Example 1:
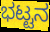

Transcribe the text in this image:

ಭಟ್ಟನ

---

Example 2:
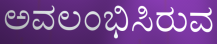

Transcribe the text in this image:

ಅವಲಂಭಿಸಿರುವ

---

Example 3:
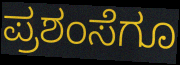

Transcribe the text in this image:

ಪ್ರಶಂಸೆಗೂ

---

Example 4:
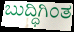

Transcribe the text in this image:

ಬುದ್ಧಿಗಿಂತ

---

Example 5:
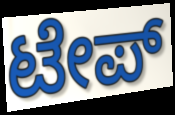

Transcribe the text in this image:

ಟೇಪ್